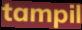
tampil